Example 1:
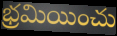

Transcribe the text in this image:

భ్రమియించు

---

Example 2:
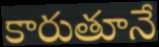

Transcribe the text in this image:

కారుతూనే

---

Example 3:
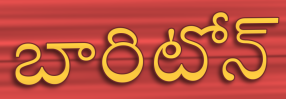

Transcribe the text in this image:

బారిటోన్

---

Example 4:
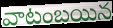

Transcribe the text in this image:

వాటంబయిన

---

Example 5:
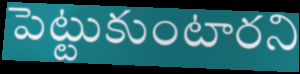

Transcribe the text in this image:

పెట్టుకుంటారని